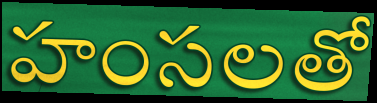
హంసలతో